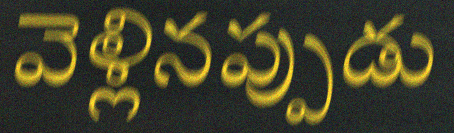
వెళ్లినప్పుడు